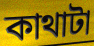
কাথাটা